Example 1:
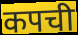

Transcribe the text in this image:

कपची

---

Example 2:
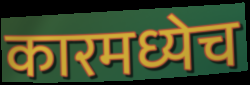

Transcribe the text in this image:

कारमध्येच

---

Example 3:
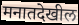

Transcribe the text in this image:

मनातदेखील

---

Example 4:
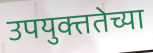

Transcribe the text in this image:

उपयुक्ततेच्या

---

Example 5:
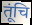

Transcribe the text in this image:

तूंचि